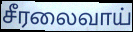
சீரலைவாய்